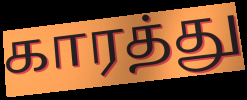
காரத்து